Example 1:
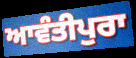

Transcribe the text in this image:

ਆਵੰਤੀਪੁਰਾ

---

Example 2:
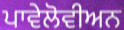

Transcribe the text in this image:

ਪਾਵੇਲੋਵੀਅਨ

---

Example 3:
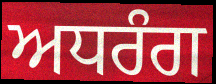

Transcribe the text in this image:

ਅਧਰੰਗ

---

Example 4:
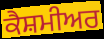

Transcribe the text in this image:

ਕੈਸ਼ਮੀਅਰ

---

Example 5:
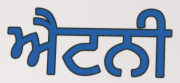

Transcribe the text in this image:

ਐਟਨੀ